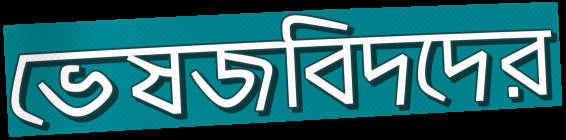
ভেষজবিদদের